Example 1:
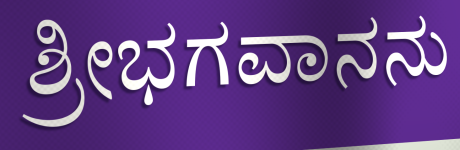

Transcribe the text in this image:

ಶ್ರೀಭಗವಾನನು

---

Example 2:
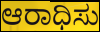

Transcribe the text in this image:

ಆರಾಧಿಸು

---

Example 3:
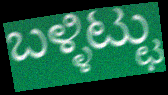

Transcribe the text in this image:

ಬಳ್ಳಿಟ್ಟು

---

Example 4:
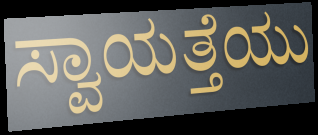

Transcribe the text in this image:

ಸ್ವಾಯತ್ತೆಯು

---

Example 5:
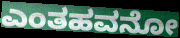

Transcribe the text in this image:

ಎಂತಹವನೋ